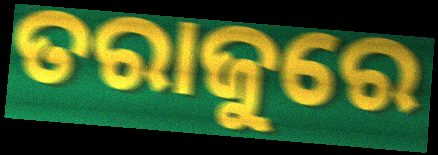
ତରାଜୁରେ